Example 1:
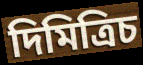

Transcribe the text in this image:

দিমিত্রিচ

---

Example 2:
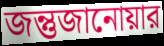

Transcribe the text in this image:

জন্তুজানোয়ার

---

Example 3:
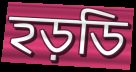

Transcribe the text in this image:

হড়ডি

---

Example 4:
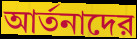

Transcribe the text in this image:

আর্তনাদের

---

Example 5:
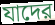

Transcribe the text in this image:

যাদের